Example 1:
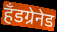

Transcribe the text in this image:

हॅंडग्रेनेड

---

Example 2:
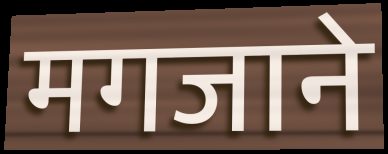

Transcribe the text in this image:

मगजाने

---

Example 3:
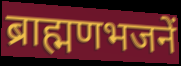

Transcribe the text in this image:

ब्राह्मणभजनें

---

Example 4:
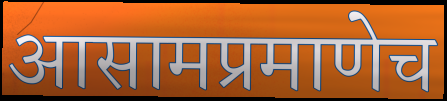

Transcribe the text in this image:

आसामप्रमाणेच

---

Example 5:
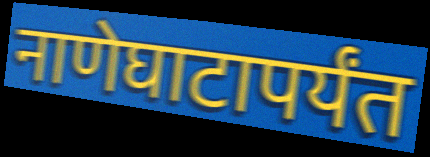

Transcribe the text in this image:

नाणेघाटापर्यंत